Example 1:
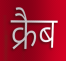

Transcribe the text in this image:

क्रैब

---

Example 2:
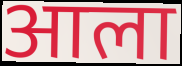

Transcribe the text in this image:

आला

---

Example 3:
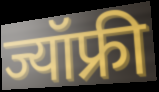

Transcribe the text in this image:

ज्यॉफ्री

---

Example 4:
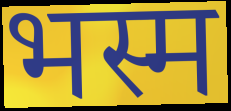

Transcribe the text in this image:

भस्म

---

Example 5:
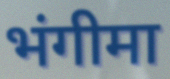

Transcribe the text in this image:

भंगीमा